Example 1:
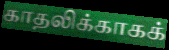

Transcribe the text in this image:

காதலிக்காகக்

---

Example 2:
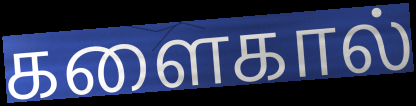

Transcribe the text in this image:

களைகால்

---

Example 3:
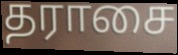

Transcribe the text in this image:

தராசை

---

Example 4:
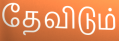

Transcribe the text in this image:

தேவிடும்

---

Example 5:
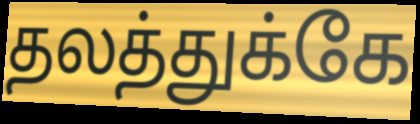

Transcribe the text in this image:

தலத்துக்கே